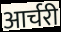
आर्चरी